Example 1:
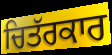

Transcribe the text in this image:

ਚਿਤੱਰਕਾਰ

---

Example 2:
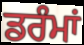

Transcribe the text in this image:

ਡਰੰਮਾਂ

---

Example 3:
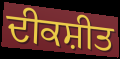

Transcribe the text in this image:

ਦੀਕਸ਼ੀਤ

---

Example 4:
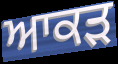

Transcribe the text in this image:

ਆਕੜ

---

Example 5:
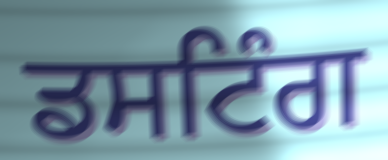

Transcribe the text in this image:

ਡਸਟਿੰਗ